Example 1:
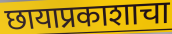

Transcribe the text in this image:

छायाप्रकाशाचा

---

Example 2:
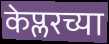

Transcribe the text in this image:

केप्लरच्या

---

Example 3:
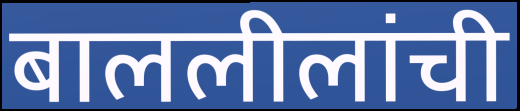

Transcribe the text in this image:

बाललीलांची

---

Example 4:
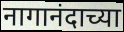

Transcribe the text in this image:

नागानंदाच्या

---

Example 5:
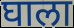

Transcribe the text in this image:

घाला